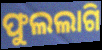
ଫୁଲଲାଗି